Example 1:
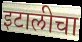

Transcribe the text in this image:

इटालीचा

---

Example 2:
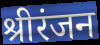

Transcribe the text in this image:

श्रीरंजन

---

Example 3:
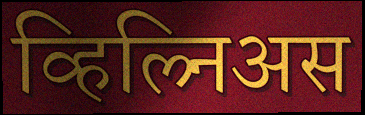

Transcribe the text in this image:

व्हिल्निअस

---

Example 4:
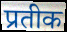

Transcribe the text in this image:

प्रतीक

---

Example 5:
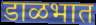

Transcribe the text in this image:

डाळभात